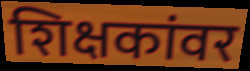
शिक्षकांवर